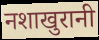
नशाखुरानी